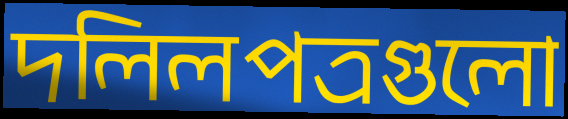
দলিলপত্রগুলো